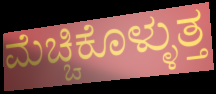
ಮೆಚ್ಚಿಕೊಳ್ಳುತ್ತ